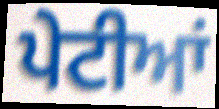
ਪੇਟੀਆਂ